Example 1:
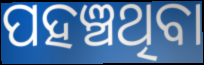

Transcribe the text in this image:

ପହଞ୍ଚଥିବା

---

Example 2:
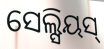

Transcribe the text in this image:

ସେଲ୍ସିୟସ୍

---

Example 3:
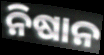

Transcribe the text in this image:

ନିଷାନ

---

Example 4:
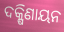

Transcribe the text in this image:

ଦକ୍ଷିଣାୟନ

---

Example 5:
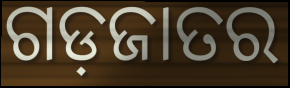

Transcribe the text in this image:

ଗଡ଼ଜାତର